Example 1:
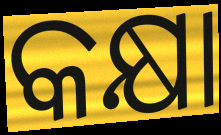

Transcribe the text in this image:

କକ୍ଷା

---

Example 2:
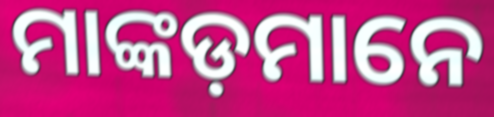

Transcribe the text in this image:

ମାଙ୍କଡ଼ମାନେ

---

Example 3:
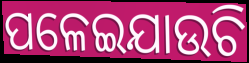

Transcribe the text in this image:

ପଳେଇଯାଉଚି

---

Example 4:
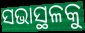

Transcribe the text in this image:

ସଭାସ୍ଥଳକୁ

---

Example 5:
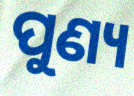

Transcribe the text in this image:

ପୁଣ୍ୟ